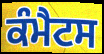
ਕੰਮੈਟਸ